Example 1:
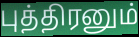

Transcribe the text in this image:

புத்திரனும்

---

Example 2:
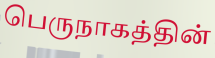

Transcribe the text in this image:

பெருநாகத்தின்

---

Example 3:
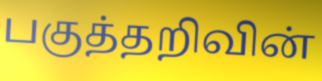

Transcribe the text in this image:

பகுத்தறிவின்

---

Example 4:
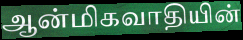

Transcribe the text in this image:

ஆன்மிகவாதியின்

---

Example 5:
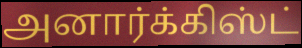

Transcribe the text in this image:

அனார்க்கிஸ்ட்